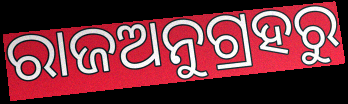
ରାଜଅନୁଗ୍ରହରୁ